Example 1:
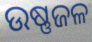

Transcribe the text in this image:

ଉଷ୍ଣଜଳ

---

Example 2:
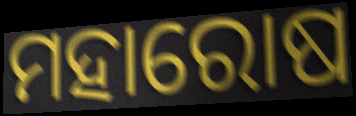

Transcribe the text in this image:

ମହାରୋଷ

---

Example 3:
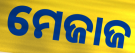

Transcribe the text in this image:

ମେଜାଜ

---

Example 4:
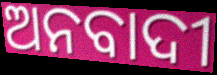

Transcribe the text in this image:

ଅନବାଦୀ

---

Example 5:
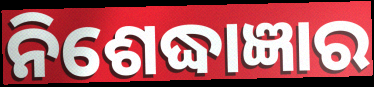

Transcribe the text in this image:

ନିଶେଦ୍ଧାଜ୍ଞାର